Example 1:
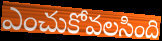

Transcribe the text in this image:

ఎంచుకోవలసింది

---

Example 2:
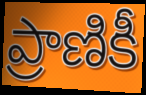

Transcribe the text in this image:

ప్రాణికీ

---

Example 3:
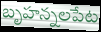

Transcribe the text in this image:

బృహన్నలపేట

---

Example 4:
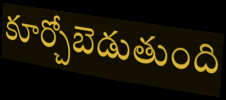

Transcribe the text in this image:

కూర్చోబెడుతుంది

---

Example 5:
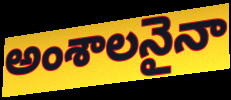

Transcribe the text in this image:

అంశాలనైనా